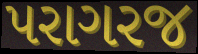
પરાગરજ